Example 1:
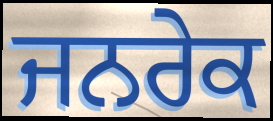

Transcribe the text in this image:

ਜਨਰੇਕ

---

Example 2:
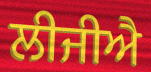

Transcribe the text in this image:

ਲੀਜੀਐ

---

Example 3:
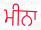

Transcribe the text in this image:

ਮੀਨਾ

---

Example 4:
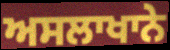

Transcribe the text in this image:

ਅਸਲਾਖਾਨੇ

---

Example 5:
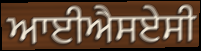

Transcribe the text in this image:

ਆਈਐਸਏਸੀ